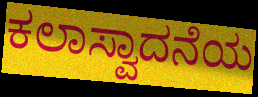
ಕಲಾಸ್ವಾದನೆಯ